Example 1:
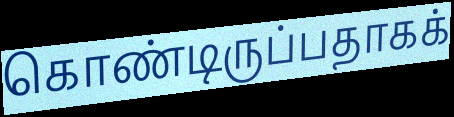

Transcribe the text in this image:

கொண்டிருப்பதாகக்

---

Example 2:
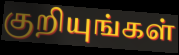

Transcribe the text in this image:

குறியுங்கள்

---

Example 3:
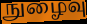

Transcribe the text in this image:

நுழைவு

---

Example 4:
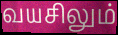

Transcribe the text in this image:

வயசிலும்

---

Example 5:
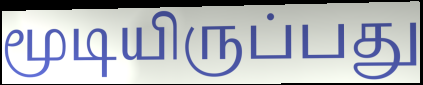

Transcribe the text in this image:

மூடியிருப்பது